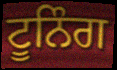
ਟੂਨਿੰਗ